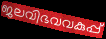
ജലവിഭവവകുപ്പ്